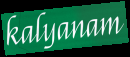
kalyanam